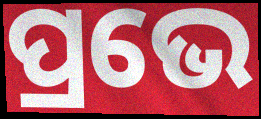
ପ୍ରଭେ